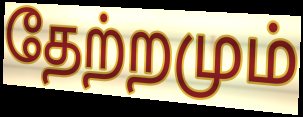
தேற்றமும்